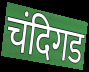
चंदिगड